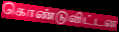
கொண்டுவிட்டன